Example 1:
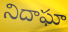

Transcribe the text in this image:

నిదాఘా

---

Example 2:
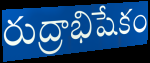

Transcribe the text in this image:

రుద్రాభిషేకం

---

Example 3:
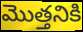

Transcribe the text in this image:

మొత్తనికి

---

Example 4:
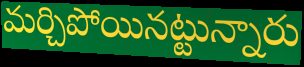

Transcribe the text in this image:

మర్చిపోయినట్టున్నారు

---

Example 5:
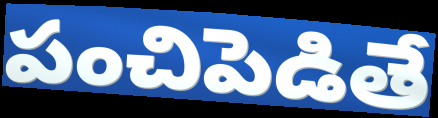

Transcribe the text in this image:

పంచిపెడితే